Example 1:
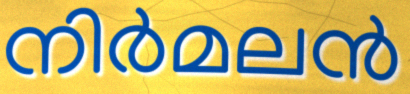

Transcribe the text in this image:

നിർമലൻ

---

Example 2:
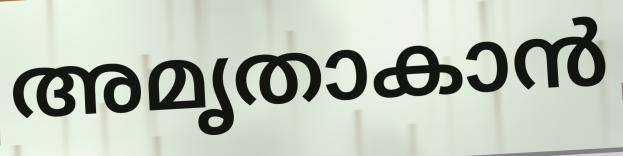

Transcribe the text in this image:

അമൃതാകാൻ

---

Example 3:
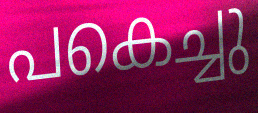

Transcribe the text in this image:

പകെച്ചു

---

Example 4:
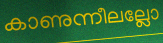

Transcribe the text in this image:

കാണുന്നീലല്ലോ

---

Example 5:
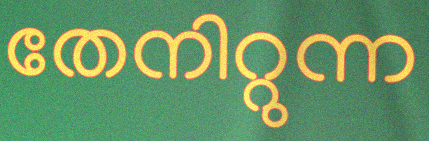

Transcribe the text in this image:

തേനിറ്റുന്ന